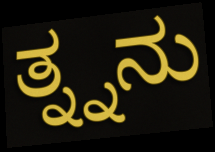
ತ್ನ್ನನು